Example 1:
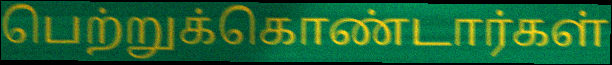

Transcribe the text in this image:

பெற்றுக்கொண்டார்கள்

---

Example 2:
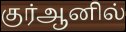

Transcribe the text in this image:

குர்ஆனில்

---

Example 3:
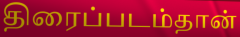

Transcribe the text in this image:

திரைப்படம்தான்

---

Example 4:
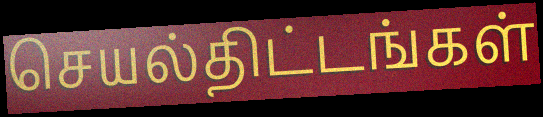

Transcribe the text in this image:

செயல்திட்டங்கள்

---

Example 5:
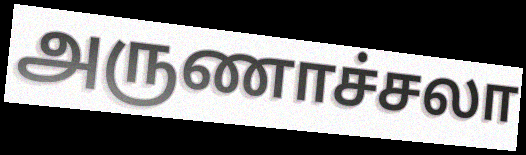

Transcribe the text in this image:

அருணாச்சலா